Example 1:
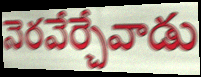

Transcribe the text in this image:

నెరవేర్చేవాడు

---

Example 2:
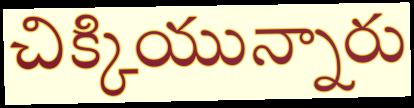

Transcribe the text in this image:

చిక్కియున్నారు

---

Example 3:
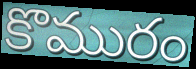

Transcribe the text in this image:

కొమురం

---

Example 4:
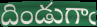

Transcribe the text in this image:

దిండుగాఁ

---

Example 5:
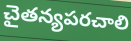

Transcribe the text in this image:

చైతన్యపరచాలి